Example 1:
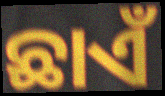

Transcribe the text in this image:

ଛାଏଁ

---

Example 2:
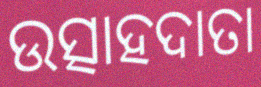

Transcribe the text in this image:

ଉତ୍ସାହଦାତା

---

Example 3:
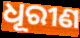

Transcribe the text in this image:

ଧୂରୀଣ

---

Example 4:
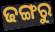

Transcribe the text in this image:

ଢଙ୍ଗରୁ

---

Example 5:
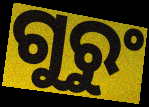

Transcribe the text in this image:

ଗୁରୁଂ